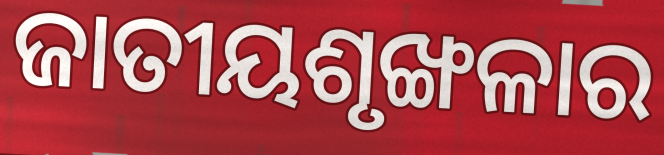
ଜାତୀୟଶୃଙ୍ଖଳାର